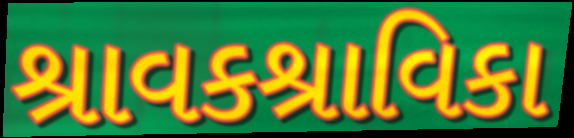
શ્રાવકશ્રાવિકા